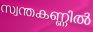
സ്വന്തകണ്ണിൽ